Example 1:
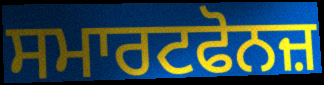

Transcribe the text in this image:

ਸਮਾਰਟਫੋਨਜ਼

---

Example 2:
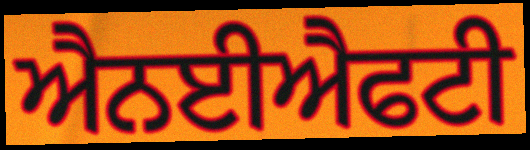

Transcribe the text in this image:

ਐਨਈਐਫਟੀ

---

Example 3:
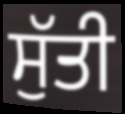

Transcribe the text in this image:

ਸੁੱਤੀ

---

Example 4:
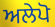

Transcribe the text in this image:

ਅਲੇਪੋ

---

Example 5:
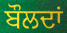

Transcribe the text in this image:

ਬੌਲਦਾਂ